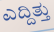
ಎದ್ದಿತ್ತು